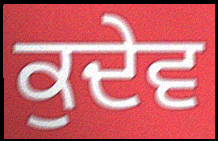
ਕੁਦੇਵ